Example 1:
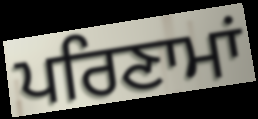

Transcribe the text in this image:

ਪਰਿਣਾਮਾਂ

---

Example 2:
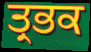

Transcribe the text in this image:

ਤ੍ਰਭਕ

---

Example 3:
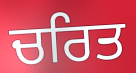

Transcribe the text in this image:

ਚਰਿਤ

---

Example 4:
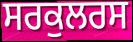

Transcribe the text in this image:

ਸਰਕੁਲਰਸ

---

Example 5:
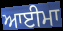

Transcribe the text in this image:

ਆਈਮਾ